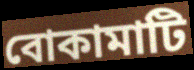
বোকামাটি